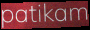
patikam